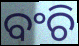
ବଂଚି